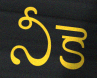
నీకె